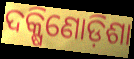
ଦକ୍ଷିଣୋଡ଼ିଶା